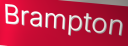
Brampton